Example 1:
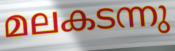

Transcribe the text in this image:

മലകടന്നു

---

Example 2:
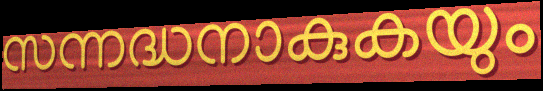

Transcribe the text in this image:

സന്നദ്ധനാകുകയും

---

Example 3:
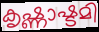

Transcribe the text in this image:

കൃഷ്ണാഷ്ടമി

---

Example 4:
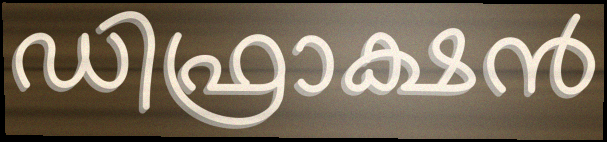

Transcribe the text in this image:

ഡിഫ്രാക്ഷൻ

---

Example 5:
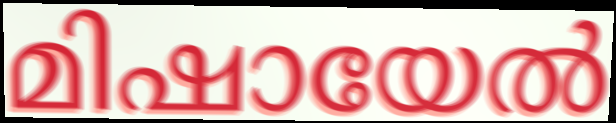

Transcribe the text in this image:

മിഷായേൽ